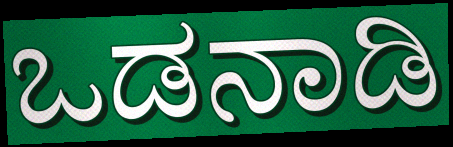
ಒಡನಾಡಿ